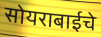
सोयराबाईचे